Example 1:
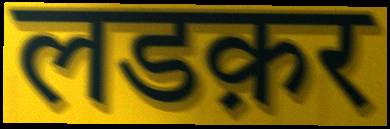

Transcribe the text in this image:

लडक़र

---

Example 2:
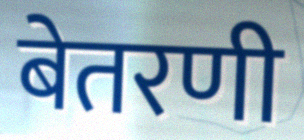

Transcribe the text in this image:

बेतरणी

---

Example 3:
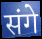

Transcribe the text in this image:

संगे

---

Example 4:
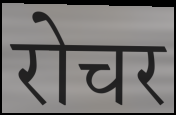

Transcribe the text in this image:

रोचर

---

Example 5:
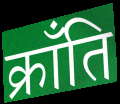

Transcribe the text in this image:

क्राँति